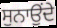
ਸੁਨਾਉਂਦੇ